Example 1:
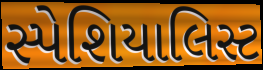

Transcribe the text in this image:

સ્પેશિયાલિસ્ટ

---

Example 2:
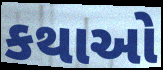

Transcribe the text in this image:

કથાઓ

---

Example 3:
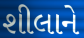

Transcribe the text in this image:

શીલાને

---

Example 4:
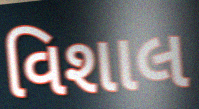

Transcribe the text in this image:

વિશાલ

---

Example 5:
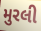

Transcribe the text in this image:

મુરલી